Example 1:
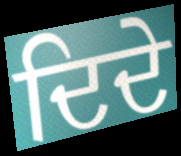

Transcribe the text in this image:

ਦਿਦੇ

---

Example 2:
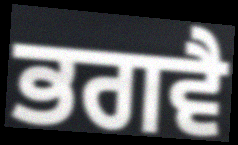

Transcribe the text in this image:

ਭਗਵੈ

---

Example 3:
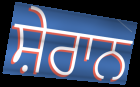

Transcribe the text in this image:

ਸ਼ੇਰਾਨ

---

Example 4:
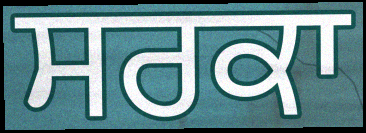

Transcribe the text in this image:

ਸਰਕਾ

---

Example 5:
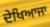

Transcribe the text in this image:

ਦੇਖਿਆਜਾ